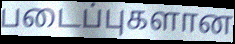
படைப்புகளான